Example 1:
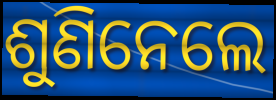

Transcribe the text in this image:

ଶୁଣିନେଲେ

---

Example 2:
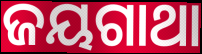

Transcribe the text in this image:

ଜୟଗାଥା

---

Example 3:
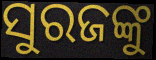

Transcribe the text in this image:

ସୁରଜଙ୍କୁ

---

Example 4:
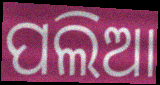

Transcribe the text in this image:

ପଲିଆ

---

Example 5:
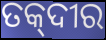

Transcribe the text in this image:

ତକ୍‌ଦୀର